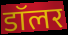
डॉलर